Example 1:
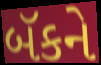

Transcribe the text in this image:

બૅકને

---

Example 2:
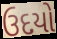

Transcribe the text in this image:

ઉદયો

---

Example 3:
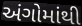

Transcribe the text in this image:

અંગોમાંથી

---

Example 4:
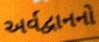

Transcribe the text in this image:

અર્વદ્વાનનો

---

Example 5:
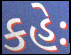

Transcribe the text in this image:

કહેઃ